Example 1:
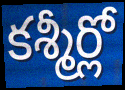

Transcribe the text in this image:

కశ్మీర్లో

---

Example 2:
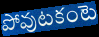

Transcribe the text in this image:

పోవుటకంటె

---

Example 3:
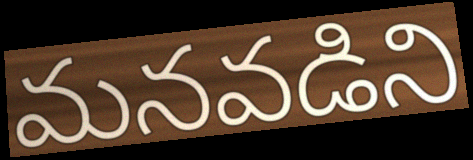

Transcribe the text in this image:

మనవడిని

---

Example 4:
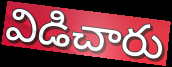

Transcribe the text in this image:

విడిచారు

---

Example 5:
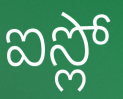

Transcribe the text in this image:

ఐస్లో